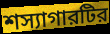
শস্যাগারটির